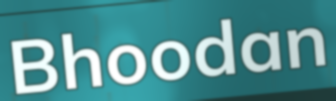
Bhoodan